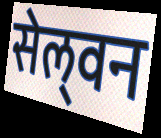
सेल्वन